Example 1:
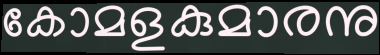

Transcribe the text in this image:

കോമളകുമാരനു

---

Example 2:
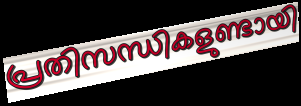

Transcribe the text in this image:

പ്രതിസന്ധികളുണ്ടായി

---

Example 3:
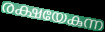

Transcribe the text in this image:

രക്ഷയേകുന്ന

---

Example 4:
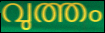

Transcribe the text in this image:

വുത്തം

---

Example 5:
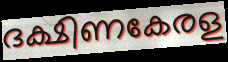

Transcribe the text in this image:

ദക്ഷിണകേരള